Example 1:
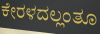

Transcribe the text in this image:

ಕೇರಳದಲ್ಲಂತೂ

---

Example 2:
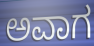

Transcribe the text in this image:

ಅವಾಗ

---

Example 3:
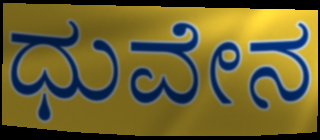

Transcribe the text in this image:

ಧುವೇನ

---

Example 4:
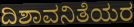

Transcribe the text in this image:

ದಿಶಾವನಿತೆಯರ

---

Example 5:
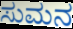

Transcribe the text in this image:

ಸುಮನ